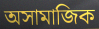
অসামাজিক